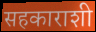
सहकाराशी